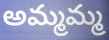
అమ్మమ్మ